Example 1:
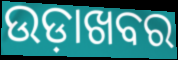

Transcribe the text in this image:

ଉଡ଼ାଖବର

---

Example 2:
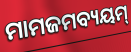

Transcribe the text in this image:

ମାମଜମବ୍ୟୟମ୍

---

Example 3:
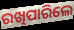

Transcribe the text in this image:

ରଖିପାରିଲେ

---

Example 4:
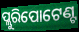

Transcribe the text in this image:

ପ୍ଲୁରିପୋଟେଣ୍ଟ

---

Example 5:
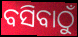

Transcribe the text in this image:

ବସିବାଠୁଁ